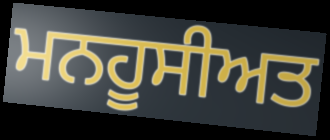
ਮਨਹੂਸੀਅਤ